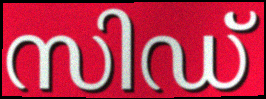
സിഡ്